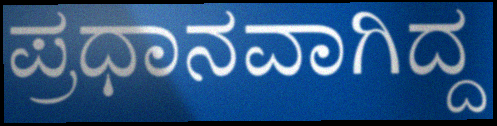
ಪ್ರಧಾನವಾಗಿದ್ದ